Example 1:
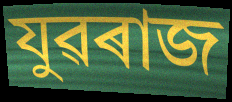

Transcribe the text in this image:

যুৱৰাজ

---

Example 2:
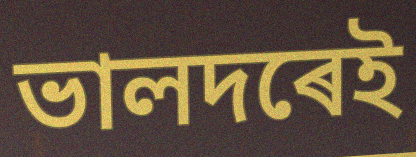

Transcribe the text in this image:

ভালদৰেই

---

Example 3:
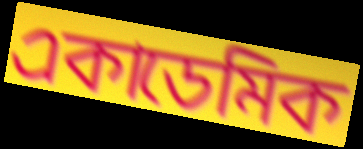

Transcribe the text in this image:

একাডেমিক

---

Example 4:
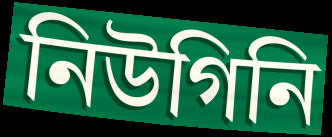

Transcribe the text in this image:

নিউগিনি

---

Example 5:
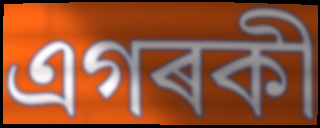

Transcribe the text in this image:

এগৰকী